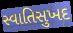
સ્વાતિસુખદ